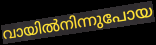
വായിൽനിന്നുപോയ